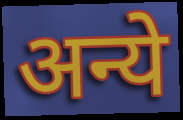
अन्ये